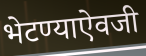
भेटण्याऐवजी